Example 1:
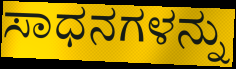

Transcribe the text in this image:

ಸಾಧನಗಳನ್ನು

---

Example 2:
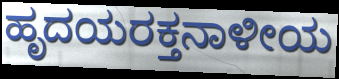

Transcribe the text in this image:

ಹೃದಯರಕ್ತನಾಳೀಯ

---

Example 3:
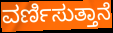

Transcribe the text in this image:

ವರ್ಣಿಸುತ್ತಾನೆ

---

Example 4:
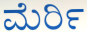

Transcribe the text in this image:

ಮೆರ್ರಿ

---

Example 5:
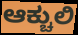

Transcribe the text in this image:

ಆಕ್ಚುಲಿ